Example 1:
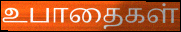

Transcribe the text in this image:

உபாதைகள்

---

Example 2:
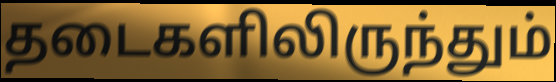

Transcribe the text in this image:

தடைகளிலிருந்தும்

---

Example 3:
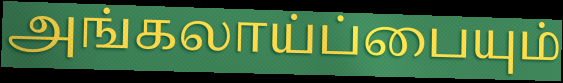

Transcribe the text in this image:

அங்கலாய்ப்பையும்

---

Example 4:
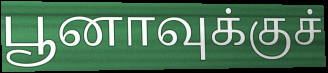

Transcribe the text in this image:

பூனாவுக்குச்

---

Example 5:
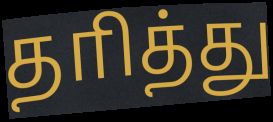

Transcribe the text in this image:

தரித்து